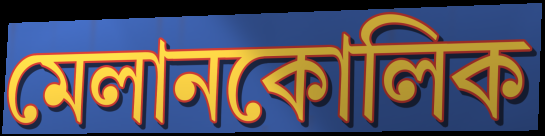
মেলানকোলিক